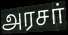
அரசர்